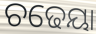
ଚଢେୟା